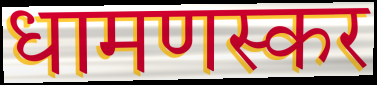
धामणस्कर